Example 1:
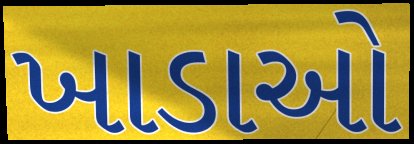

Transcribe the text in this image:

ખાડાઓ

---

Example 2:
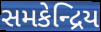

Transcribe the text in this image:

સમકેન્દ્રિય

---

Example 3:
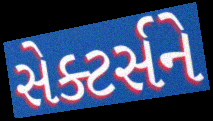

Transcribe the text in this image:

સેક્ટર્સને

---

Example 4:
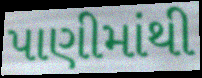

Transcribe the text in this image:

પાણીમાંથી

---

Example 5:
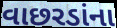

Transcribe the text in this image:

વાછરડાંના